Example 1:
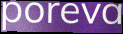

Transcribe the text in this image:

poreva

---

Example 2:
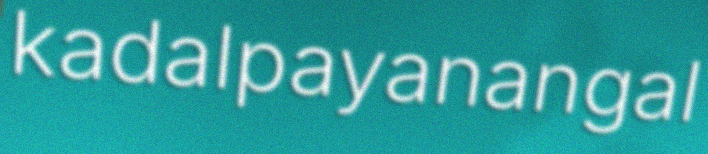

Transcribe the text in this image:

kadalpayanangal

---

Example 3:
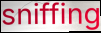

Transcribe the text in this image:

sniffing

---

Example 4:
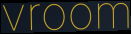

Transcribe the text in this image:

vroom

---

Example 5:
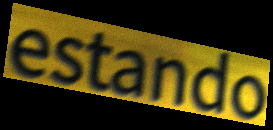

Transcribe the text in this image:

estando